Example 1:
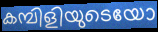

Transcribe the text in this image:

കമ്പിളിയുടെയോ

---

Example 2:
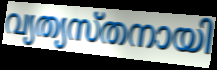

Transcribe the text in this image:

വ്യത്യസ്തനായി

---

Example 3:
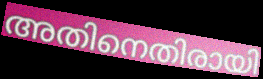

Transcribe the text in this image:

അതിനെതിരായി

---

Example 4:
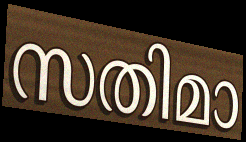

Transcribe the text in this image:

സതിമാ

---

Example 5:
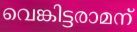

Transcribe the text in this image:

വെങ്കിട്ടരാമന്